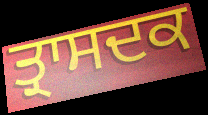
ਤ੍ਰਾਸਦਕ